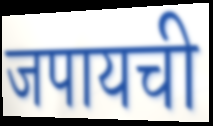
जपायची